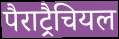
पैराट्रैचियल